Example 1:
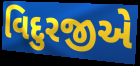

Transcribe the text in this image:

વિદુરજીએ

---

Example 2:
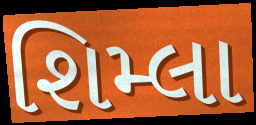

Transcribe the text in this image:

શિમ્લા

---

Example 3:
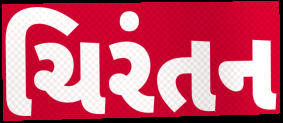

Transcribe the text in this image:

ચિરંતન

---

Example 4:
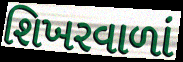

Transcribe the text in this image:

શિખરવાળાં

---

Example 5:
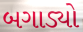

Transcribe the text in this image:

બગાડ્યો